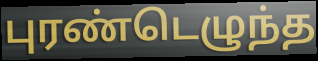
புரண்டெழுந்த